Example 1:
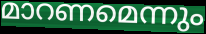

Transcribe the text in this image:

മാറണമെന്നും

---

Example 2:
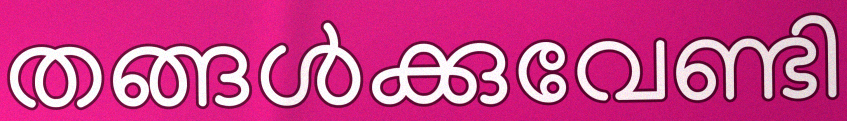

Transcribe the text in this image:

തങ്ങൾക്കുവേണ്ടി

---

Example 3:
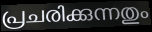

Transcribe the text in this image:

പ്രചരിക്കുന്നതും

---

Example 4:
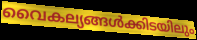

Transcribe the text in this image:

വൈകല്യങ്ങൾക്കിടയിലും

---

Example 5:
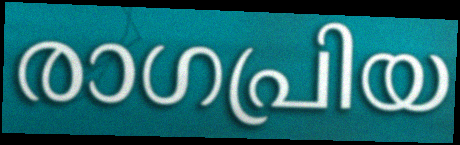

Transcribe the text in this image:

രാഗപ്രിയ